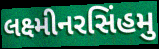
લક્ષ્મીનરસિંહમુ